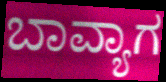
ಬಾವ್ಯಾಗ